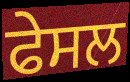
ਫੇਸਲ